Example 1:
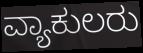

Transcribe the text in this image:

ವ್ಯಾಕುಲರು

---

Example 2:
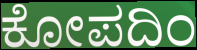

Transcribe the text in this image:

ಕೋಪದಿಂ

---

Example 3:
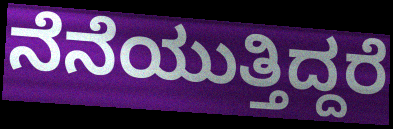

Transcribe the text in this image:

ನೆನೆಯುತ್ತಿದ್ದರೆ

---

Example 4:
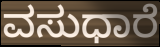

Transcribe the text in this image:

ವಸುಧಾರೆ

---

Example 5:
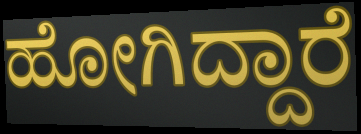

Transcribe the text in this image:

ಹೋಗಿದ್ದಾರೆ